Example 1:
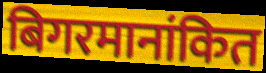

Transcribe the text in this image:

बिगरमानांकित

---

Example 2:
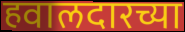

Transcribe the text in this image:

हवालदारच्या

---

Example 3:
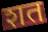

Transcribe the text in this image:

शत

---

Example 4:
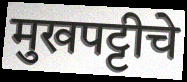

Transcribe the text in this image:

मुखपट्टीचे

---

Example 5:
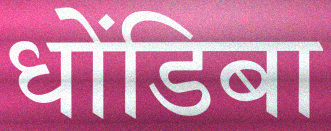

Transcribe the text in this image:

धोंडिबा